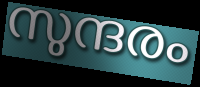
സുന്ദരം